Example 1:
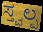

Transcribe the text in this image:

ಸ್ತ್ವಲ್ಪ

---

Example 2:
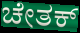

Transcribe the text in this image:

ಚೇತಕ್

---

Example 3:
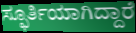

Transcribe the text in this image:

ಸ್ಫೂರ್ತಿಯಾಗಿದ್ದಾರೆ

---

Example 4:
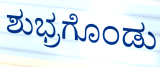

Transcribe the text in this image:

ಶುಭ್ರಗೊಂಡು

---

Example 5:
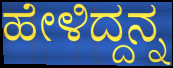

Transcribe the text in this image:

ಹೇಳಿದ್ದನ್ನ